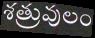
శత్రువులం